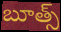
బూత్స్